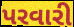
પરવારી